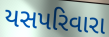
યસપરિવારા